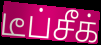
டீப்சீக்